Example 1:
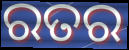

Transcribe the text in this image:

ରତର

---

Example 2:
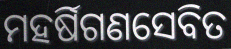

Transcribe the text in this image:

ମହର୍ଷିଗଣସେବିତ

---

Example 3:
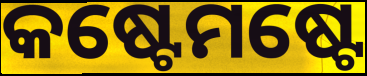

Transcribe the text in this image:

କଷ୍ଟେମଷ୍ଟେ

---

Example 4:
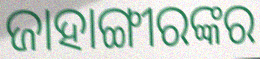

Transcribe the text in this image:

ଜାହାଙ୍ଗୀରଙ୍କର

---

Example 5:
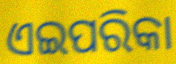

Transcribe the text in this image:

ଏଇପରିକା